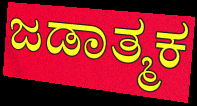
ಜಡಾತ್ಮಕ